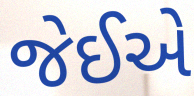
જેઈએ